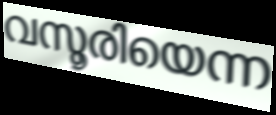
വസൂരിയെന്ന